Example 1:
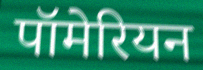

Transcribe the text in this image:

पॉमेरियन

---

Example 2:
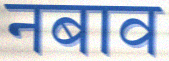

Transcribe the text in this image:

नबाव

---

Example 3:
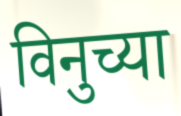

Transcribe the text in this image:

विनुच्या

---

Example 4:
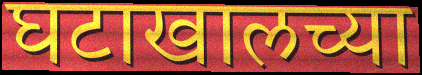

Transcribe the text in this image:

घटाखालच्या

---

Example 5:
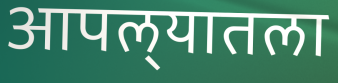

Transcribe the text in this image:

आपल्यातला